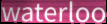
waterloo